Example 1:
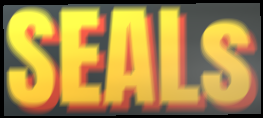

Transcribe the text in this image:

SEALs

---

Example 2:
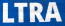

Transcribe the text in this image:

LTRA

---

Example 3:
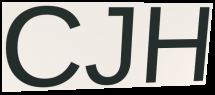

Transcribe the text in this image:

CJH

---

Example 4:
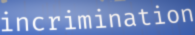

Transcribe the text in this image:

incrimination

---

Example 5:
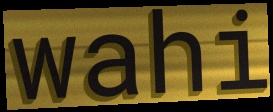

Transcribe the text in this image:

wahi